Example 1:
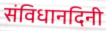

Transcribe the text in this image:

संविधानदिनी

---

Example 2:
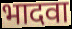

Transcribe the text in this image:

भादवा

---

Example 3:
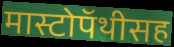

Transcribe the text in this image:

मास्टोपॅथीसह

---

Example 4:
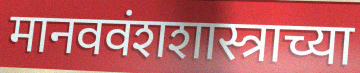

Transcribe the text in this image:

मानववंशशास्त्राच्या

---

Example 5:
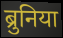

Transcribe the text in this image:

ब्रुनिया